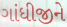
ગાંધીજીને